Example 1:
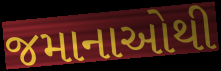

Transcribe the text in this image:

જમાનાઓથી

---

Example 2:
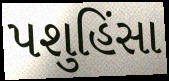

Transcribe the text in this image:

પશુહિંસા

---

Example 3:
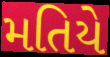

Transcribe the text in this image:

મતિયે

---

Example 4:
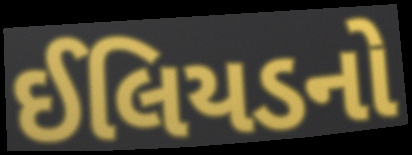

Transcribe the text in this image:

ઈલિયડનો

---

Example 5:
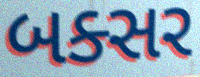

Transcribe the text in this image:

બક્સર